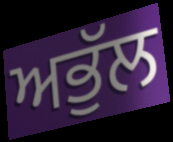
ਅਭੁੱਲ